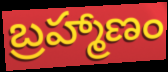
బ్రహ్మాణం